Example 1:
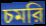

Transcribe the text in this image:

চমরি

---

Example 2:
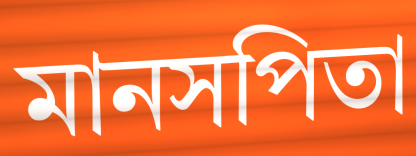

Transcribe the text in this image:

মানসপিতা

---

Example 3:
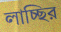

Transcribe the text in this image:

লাচ্ছির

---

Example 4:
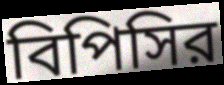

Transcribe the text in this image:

বিপিসির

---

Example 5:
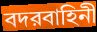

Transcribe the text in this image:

বদরবাহিনী